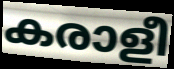
കരാളീ